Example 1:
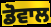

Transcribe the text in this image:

ਡੋਵਾਲ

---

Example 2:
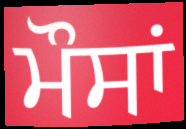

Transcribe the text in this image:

ਮੌਸਾਂ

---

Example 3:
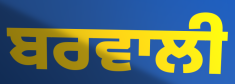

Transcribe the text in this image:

ਬਰਵਾਲੀ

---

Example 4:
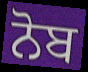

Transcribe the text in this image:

ਨੋਬ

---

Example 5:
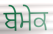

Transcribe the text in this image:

ਬੇਮੇਕ